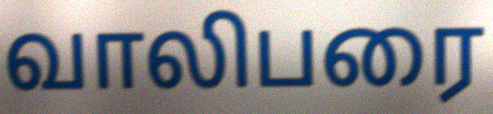
வாலிபரை